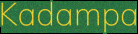
Kadampa